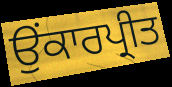
ਉਂਕਾਰਪ੍ਰੀਤ